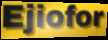
Ejiofor